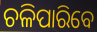
ଚଳିପାରିବେ